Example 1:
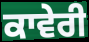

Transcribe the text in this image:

ਕਾਵੇਰੀ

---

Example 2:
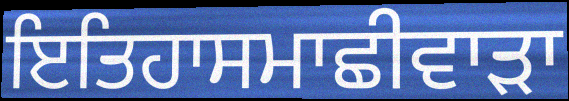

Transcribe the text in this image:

ਇਤਿਹਾਸਮਾਛੀਵਾੜਾ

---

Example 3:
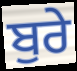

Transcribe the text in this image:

ਬੁਰੇ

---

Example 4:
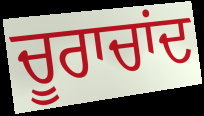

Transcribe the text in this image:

ਚੂਰਾਚਾਂਦ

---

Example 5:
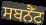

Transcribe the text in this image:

ਸਬਨੈੱਟ